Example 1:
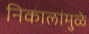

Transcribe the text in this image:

निकालांमुळे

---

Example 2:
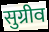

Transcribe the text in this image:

सुग्रीव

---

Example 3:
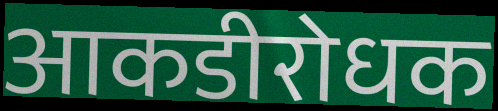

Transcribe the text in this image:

आकडीरोधक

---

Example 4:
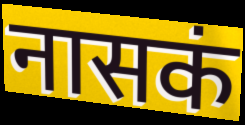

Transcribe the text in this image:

नासकं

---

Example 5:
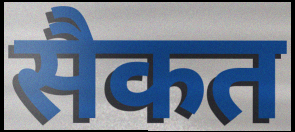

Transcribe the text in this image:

सैकत